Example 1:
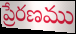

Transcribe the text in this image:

ప్రేరణము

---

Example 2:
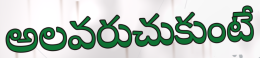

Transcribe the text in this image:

అలవరుచుకుంటే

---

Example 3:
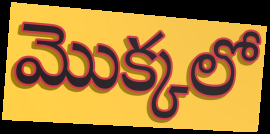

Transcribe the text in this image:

మొక్కలో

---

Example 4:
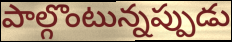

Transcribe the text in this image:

పాల్గొంటున్నప్పుడు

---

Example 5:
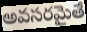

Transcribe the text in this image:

అవసరమైతే